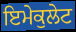
ਇਮੇਕੁਲੇਟ